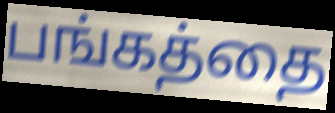
பங்கத்தை